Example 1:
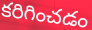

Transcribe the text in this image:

కరిగించడం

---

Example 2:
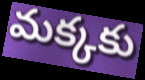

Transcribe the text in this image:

మక్కకు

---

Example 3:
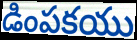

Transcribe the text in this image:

డింపకయు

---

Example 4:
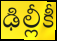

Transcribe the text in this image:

ఢిల్లీకీ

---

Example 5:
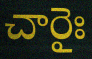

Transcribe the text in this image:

చారైః